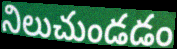
నిలుచుండడం